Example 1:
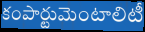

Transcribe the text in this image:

కంపార్టుమెంటాలిటీ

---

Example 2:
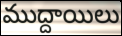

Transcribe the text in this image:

ముద్దాయిలు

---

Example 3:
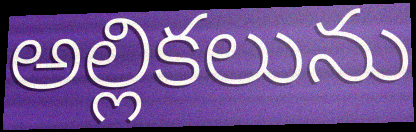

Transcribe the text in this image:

అల్లికలును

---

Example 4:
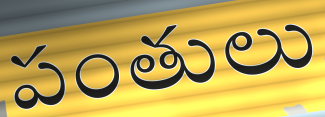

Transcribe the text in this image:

పంతులు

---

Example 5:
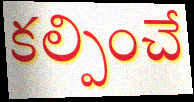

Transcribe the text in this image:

కల్పించే